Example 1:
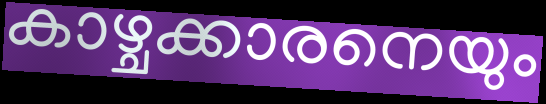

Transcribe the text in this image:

കാഴ്ചക്കാരനെയും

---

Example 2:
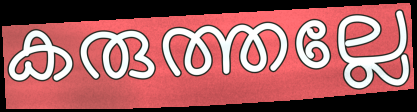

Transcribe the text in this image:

കരുത്തല്ലേ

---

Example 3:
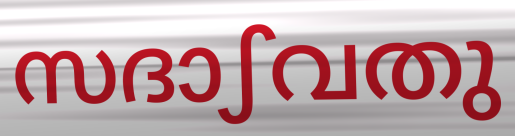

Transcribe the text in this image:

സദാഽവതു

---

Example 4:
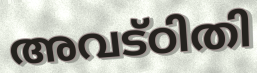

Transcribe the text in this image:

അവട്ഠിതി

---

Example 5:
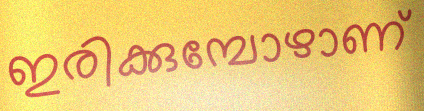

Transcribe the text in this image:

ഇരിക്കുമ്പോഴാണ്